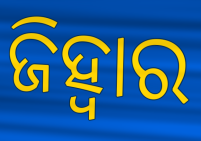
ଜିହ୍ଵାର